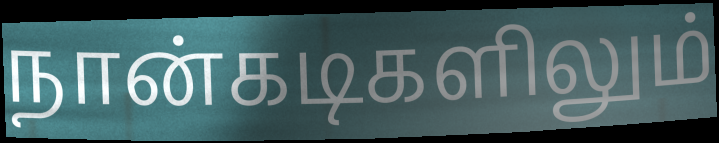
நான்கடிகளிலும்